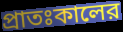
প্রাতঃকালের